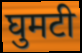
घुमटी